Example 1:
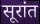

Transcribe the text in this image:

सूरांत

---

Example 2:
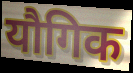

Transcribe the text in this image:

यौगिक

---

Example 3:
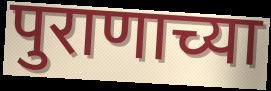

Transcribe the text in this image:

पुराणाच्या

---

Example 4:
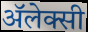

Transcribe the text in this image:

ॲलेक्सी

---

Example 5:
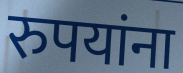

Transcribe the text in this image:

रुपयांना